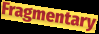
Fragmentary